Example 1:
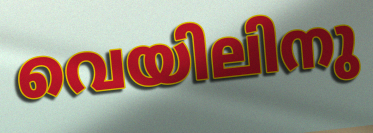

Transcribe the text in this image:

വെയിലിനു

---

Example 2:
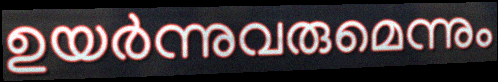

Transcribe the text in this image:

ഉയർന്നുവരുമെന്നും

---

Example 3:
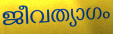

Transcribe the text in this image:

ജീവത്യാഗം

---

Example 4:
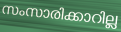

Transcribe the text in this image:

സംസാരിക്കാറില്ല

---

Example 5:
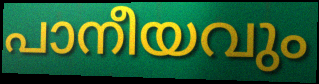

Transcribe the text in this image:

പാനീയവും